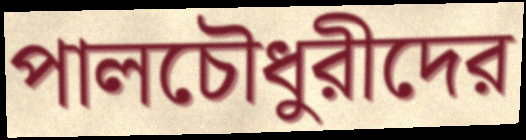
পালচৌধুরীদের